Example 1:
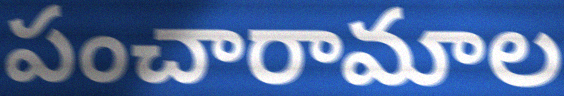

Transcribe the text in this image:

పంచారామాల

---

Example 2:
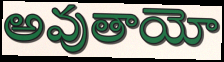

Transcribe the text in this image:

అవుతాయో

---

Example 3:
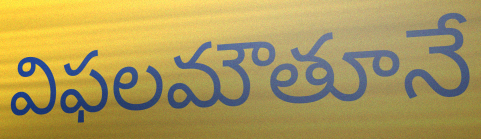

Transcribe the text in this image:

విఫలమౌతూనే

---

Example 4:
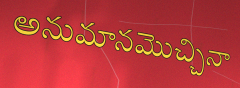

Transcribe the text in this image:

అనుమానమొచ్చినా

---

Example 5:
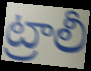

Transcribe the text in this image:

ట్రాలీ